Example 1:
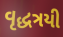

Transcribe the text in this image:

વૃદ્ધત્રયી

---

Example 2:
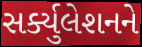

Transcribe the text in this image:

સર્ક્યુલેશનને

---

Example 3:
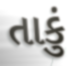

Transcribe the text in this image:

તાકું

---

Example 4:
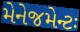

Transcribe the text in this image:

મેનેજમેન્ટઃ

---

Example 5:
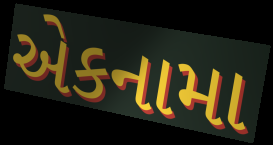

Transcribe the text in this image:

એકનામા